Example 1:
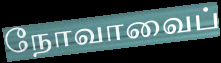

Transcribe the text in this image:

நோவாவைப்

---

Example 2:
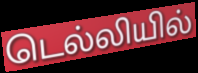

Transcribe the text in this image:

டெல்லியில்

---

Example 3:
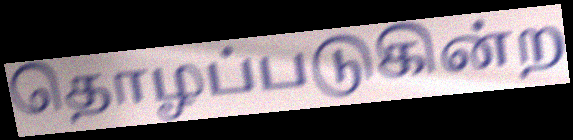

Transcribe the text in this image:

தொழப்படுகின்ற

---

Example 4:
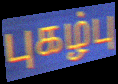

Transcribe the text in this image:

புகழ்பு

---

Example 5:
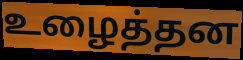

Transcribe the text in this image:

உழைத்தன